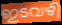
ഇടവഴി